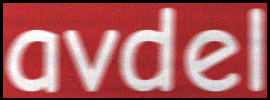
avdel